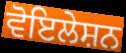
ਵੋਇਲੇਸ਼ਨ